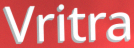
Vritra